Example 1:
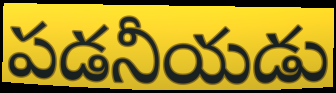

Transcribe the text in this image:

పడనీయడు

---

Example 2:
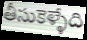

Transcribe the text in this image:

తీసుకెళ్ళేది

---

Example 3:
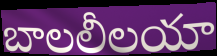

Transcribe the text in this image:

బాలలీలయా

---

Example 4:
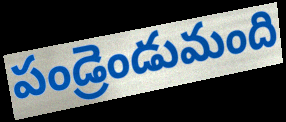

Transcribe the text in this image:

పండ్రెండుమంది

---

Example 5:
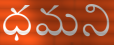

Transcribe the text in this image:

ధమని